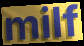
milf